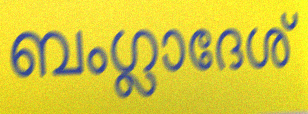
ബംഗ്ലാദേശ്